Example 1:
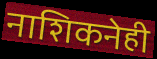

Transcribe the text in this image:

नाशिकनेही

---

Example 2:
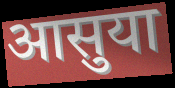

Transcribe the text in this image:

आसुया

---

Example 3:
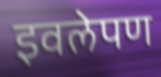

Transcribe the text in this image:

इवलेपण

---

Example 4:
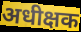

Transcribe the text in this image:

अधीक्षक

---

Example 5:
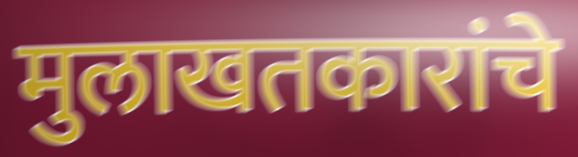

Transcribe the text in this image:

मुलाखतकारांचे